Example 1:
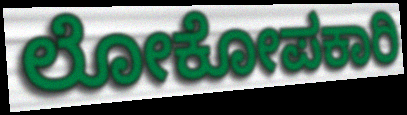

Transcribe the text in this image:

ಲೋಕೋಪಕಾರಿ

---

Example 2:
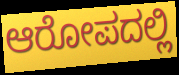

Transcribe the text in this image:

ಆರೋಪದಲ್ಲಿ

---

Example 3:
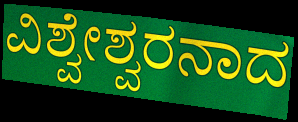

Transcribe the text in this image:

ವಿಶ್ವೇಶ್ವರನಾದ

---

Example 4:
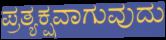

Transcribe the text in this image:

ಪ್ರತ್ಯಕ್ಷವಾಗುವುದು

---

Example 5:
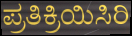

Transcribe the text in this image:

ಪ್ರತಿಕ್ರಿಯಿಸಿರಿ